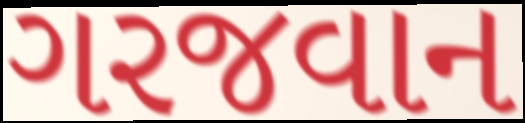
ગરજવાન